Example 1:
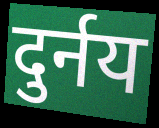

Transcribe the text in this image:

दुर्नय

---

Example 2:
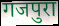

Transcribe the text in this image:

गजपुरा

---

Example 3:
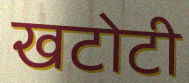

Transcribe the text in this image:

खटोटी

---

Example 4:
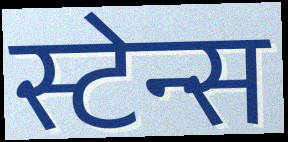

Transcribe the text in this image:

स्टेन्स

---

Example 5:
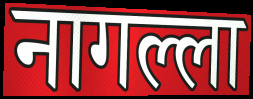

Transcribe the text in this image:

नागल्ला